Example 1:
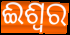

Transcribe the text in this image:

ଈଶ୍ବର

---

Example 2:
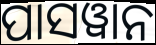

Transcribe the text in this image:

ପାସୱାନ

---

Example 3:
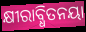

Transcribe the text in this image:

କ୍ଷୀରାବ୍ଧିତନୟା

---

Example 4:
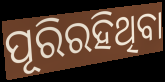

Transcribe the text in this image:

ପୂରିରହିଥିବା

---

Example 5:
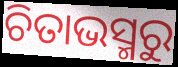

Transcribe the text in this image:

ଚିତାଭସ୍ମରୁ